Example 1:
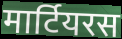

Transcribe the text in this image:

मार्टियरस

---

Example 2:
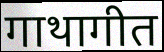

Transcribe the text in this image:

गाथागीत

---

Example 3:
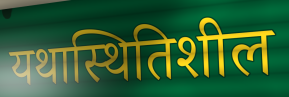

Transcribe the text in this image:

यथास्थितिशील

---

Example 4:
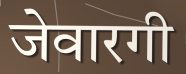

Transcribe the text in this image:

जेवारगी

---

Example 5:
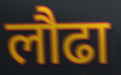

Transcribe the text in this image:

लौढा